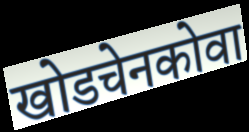
खोडचेनकोवा